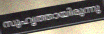
സുഹൃത്തായിരുന്നു